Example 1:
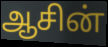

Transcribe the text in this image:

ஆசின்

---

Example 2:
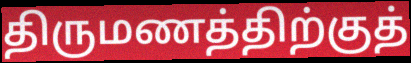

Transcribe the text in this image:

திருமணத்திற்குத்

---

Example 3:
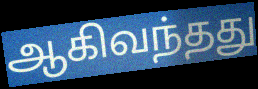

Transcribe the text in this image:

ஆகிவந்தது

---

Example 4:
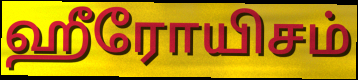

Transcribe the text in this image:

ஹீரோயிசம்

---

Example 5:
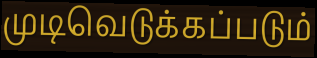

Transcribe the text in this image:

முடிவெடுக்கப்படும்